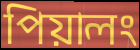
পিয়ালং